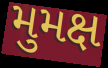
મુમક્ષ